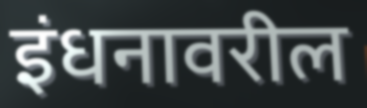
इंधनावरील